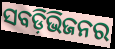
ସବଡ଼ିଭିଜନର